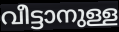
വീട്ടാനുള്ള